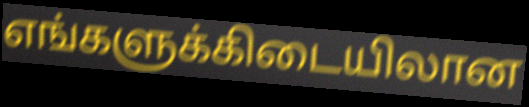
எங்களுக்கிடையிலான